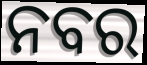
ନବର